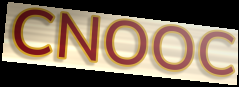
CNOOC